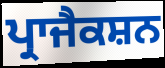
ਪ੍ਰਾਜੈਕਸ਼ਨ